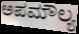
ಅಪಮೌಲ್ಯ